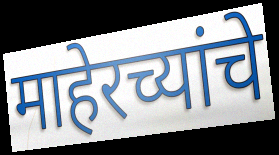
माहेरच्यांचे